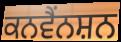
ਕਨਵੈਂਨਸ਼ਨ